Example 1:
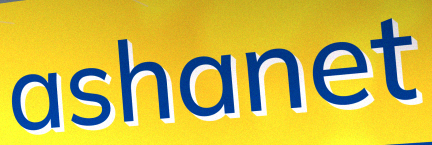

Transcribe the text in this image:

ashanet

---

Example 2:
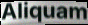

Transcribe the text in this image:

Aliquam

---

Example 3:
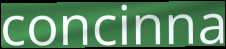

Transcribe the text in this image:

concinna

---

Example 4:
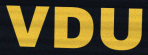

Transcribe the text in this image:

VDU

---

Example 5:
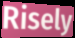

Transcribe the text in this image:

Risely